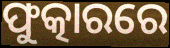
ଫୁତ୍କାରରେ